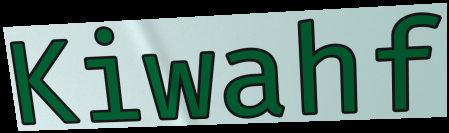
Kiwahf